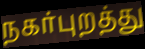
நகர்புறத்து